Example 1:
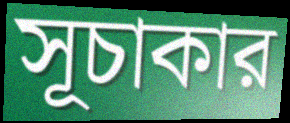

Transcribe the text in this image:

সূচাকার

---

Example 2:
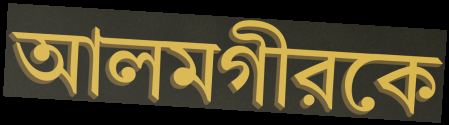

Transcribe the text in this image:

আলমগীরকে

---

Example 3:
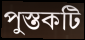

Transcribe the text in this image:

পুস্তকটি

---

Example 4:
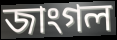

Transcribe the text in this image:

জাংগল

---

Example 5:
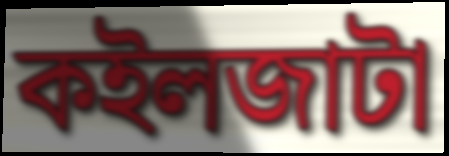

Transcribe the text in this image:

কইলজাটা